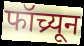
फॉच्र्यून